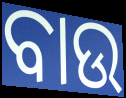
ବାଉ